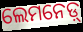
ଲେମନେଡ଼୍